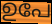
ഉപേ